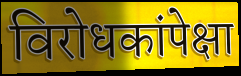
विरोधकांपेक्षा